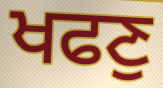
ਖਫਣੁ